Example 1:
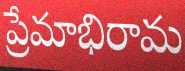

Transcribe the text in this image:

ప్రేమాభిరామ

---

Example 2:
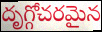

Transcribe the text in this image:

దృగ్గోచరమైన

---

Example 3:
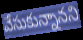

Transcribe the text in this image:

వేసుకున్నానని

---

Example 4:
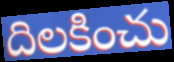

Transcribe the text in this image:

దిలకించు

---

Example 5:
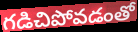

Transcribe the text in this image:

గడిచిపోవడంతో